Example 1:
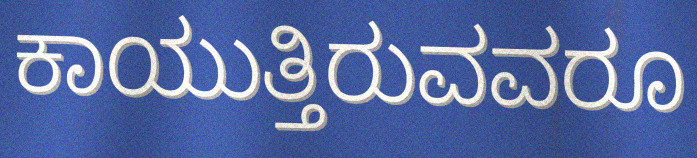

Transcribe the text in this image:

ಕಾಯುತ್ತಿರುವವರೂ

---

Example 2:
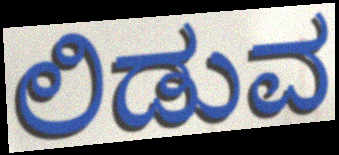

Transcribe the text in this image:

ಲಿಡುವ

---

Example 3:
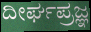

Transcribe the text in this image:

ದೀರ್ಘಪ್ರಜ್ಞ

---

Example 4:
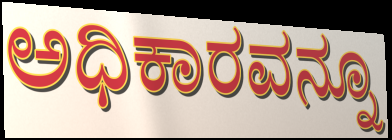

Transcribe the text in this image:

ಅಧಿಕಾರವನ್ನೂ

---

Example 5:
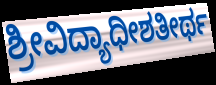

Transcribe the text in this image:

ಶ್ರೀವಿದ್ಯಾಧೀಶತೀರ್ಥ